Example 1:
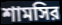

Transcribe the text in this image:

শামসির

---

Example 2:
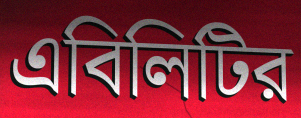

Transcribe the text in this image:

এবিলিটির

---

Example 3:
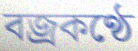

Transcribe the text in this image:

বজ্রকণ্ঠে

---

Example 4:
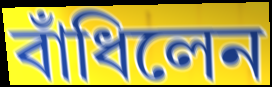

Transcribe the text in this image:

বাঁধিলেন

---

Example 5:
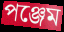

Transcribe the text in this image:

পঞ্জেম